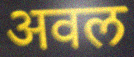
अवल